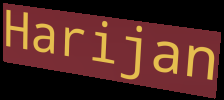
Harijan